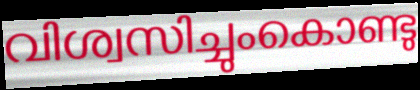
വിശ്വസിച്ചുംകൊണ്ടു